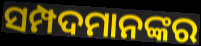
ସମ୍ପଦମାନଙ୍କର